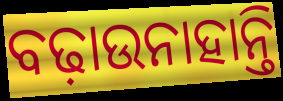
ବଢ଼ାଉନାହାନ୍ତି